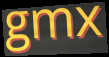
gmx